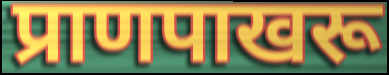
प्राणपाखरू